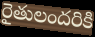
రైతులందరికి